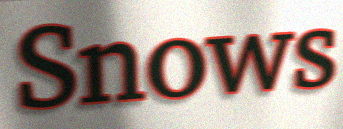
Snows